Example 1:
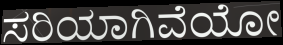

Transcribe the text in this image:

ಸರಿಯಾಗಿವೆಯೋ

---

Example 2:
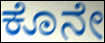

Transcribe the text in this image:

ಕೊನೇ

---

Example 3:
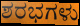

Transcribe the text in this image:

ಶರಭಗಳು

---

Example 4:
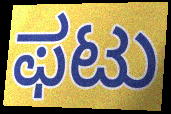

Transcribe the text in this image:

ಫಟು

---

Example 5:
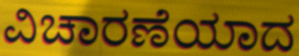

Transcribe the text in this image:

ವಿಚಾರಣೆಯಾದ